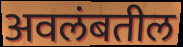
अवलंबतील